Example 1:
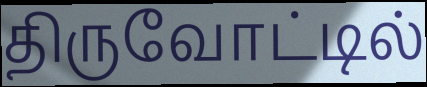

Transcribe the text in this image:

திருவோட்டில்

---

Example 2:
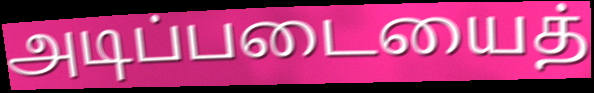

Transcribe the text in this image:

அடிப்படையைத்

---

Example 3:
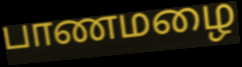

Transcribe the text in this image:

பாணமழை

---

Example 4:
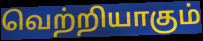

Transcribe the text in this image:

வெற்றியாகும்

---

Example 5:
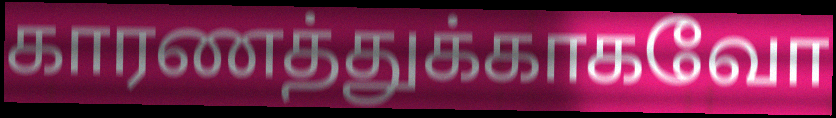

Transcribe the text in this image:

காரணத்துக்காகவோ